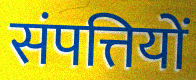
संपत्तियों